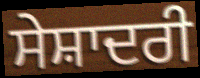
ਸੇਸ਼ਾਦਰੀ